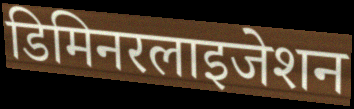
डिमिनरलाइजेशन